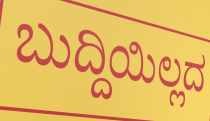
ಬುದ್ದಿಯಿಲ್ಲದ